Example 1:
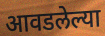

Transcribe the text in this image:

आवडलेल्या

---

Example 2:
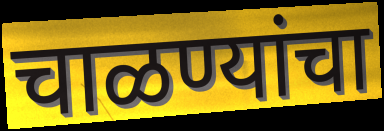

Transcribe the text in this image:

चाळण्यांचा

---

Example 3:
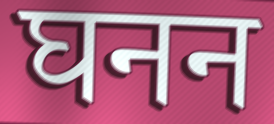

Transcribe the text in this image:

घनन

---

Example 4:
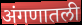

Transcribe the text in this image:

अंगणातली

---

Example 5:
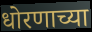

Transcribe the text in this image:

धोरणाच्या